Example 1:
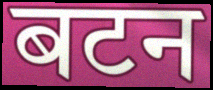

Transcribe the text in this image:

बटन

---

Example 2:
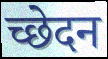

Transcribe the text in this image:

च्छेदन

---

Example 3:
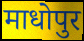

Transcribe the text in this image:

माधोपुर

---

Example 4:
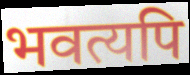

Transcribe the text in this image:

भवत्यपि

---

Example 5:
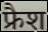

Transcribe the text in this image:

फ्रैश